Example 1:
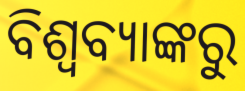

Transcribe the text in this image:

ବିଶ୍ୱବ୍ୟାଙ୍କରୁ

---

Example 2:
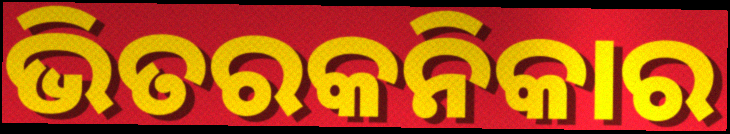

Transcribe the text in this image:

ଭିତରକନିକାର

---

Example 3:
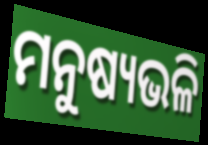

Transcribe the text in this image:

ମନୁଷ୍ୟଭଳି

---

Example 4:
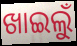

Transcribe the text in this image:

ଖାଇଲୁଁ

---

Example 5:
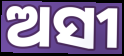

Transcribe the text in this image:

ଅସୀ